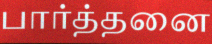
பார்த்தனை